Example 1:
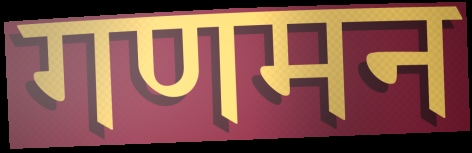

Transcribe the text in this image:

गणमन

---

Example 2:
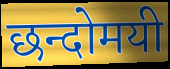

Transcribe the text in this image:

छन्दोमयी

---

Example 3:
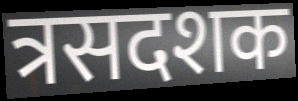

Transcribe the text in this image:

त्रसदशक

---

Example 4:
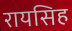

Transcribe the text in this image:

रायसिह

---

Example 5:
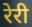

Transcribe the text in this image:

रेरी